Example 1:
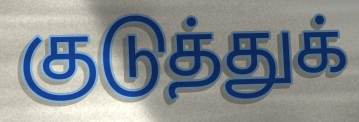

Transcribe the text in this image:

குடுத்துக்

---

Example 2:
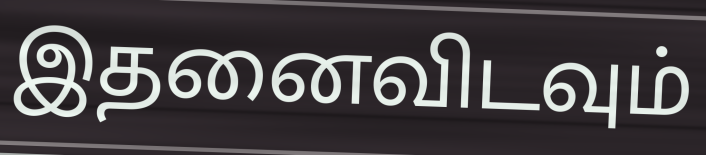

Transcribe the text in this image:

இதனைவிடவும்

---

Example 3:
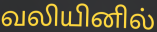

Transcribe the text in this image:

வலியினில்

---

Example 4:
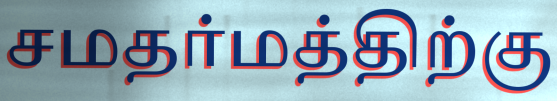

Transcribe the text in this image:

சமதர்மத்திற்கு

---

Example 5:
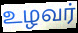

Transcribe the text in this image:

உழவர்